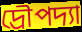
দ্রৌপদ্যা